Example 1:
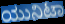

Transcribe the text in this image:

ಯುನಿಟಾ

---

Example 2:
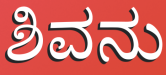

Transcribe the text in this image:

ಶಿವನು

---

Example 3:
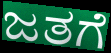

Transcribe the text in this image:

ಜತಗೆ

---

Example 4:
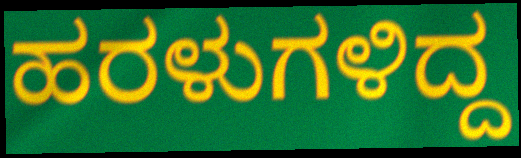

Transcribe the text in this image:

ಹರಳುಗಳಿದ್ದ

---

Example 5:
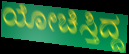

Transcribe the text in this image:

ಯೋಚಿಸ್ತಿದ್ದ